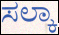
ಸಲ್ಕಾ